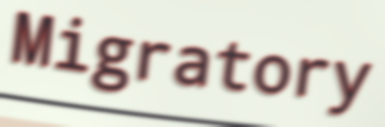
Migratory